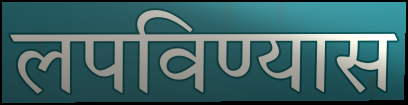
लपविण्यास